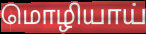
மொழியாய்